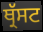
ਥ੍ਰੱਸਟ